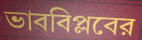
ভাববিপ্লবের